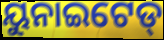
ୟୁନାଇଟେଡ୍